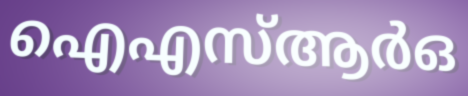
ഐഎസ്ആർഒ